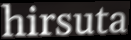
hirsuta